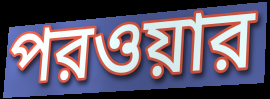
পরওয়ার